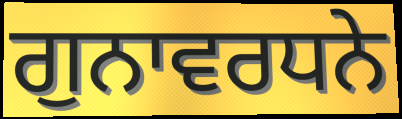
ਗੁਨਾਵਰਧਨੇ